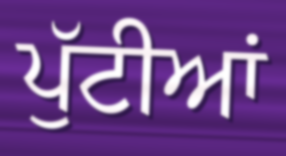
ਪੁੱਟੀਆਂ